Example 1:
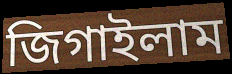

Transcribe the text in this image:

জিগাইলাম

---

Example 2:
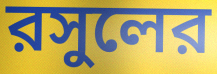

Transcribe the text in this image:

রসুলের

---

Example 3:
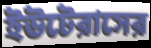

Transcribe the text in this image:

ইউটেরাসের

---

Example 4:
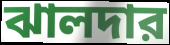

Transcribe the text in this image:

ঝালদার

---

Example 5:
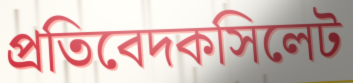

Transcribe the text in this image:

প্রতিবেদকসিলেট